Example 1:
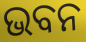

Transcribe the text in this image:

ଭବନ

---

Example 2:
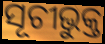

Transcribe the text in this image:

ସୂଚୀଭୁକ୍ତ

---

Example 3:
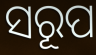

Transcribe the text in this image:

ସରୂପ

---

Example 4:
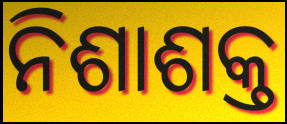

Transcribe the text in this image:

ନିଶାଶକ୍ତ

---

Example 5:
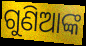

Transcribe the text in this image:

ଗୁଣିଆଙ୍କ